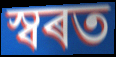
স্বৰত